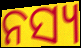
ନସ୍ୟ